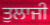
ਤੁਲਾਜੀ